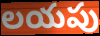
లయపు